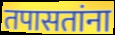
तपासतांना